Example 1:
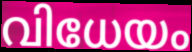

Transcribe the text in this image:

വിധേയം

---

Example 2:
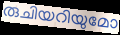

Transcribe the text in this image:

രുചിയറിയുമോ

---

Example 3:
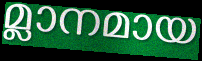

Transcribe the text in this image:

മ്ലാനമായ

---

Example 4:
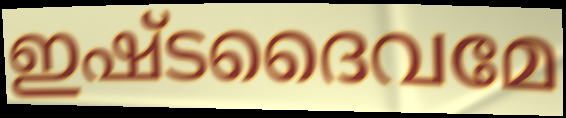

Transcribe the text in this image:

ഇഷ്ടദൈവമേ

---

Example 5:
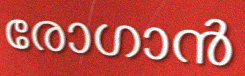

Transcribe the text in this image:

രോഗാൻ